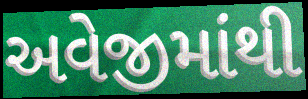
અવેજીમાંથી